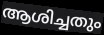
ആശിച്ചതും